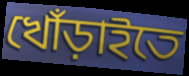
খোঁড়াইতে